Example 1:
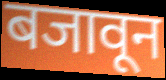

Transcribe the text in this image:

बजावून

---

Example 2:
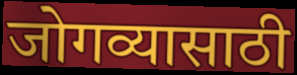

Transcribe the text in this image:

जोगव्यासाठी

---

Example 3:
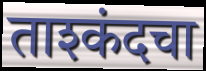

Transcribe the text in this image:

ताश्कंदचा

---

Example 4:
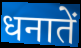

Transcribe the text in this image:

धनातें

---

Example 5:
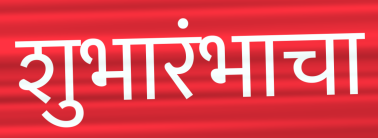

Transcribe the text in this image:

शुभारंभाचा